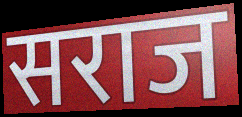
सराज